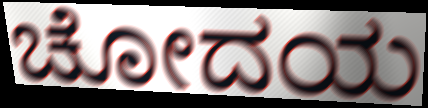
ಚೋದಯ